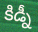
కిడ్నీ